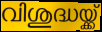
വിശുദ്ധയ്ക്ക്